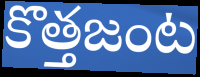
కొత్తజంట